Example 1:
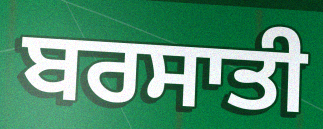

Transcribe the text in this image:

ਬਰਸਾਤੀ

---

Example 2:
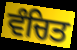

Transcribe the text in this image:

ਵੰਚਿਤ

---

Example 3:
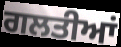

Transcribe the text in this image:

ਗਲਤੀਆਂ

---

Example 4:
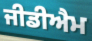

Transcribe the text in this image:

ਜੀਡੀਐਮ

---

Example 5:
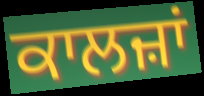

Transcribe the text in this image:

ਕਾਲਜ਼ਾਂ